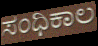
ಸಂಧಿಕಾಲ